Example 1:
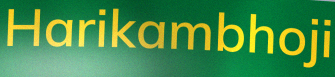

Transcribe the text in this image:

Harikambhoji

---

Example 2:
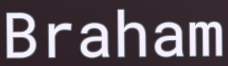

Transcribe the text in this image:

Braham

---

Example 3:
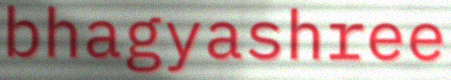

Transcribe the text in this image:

bhagyashree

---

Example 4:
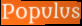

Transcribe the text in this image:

Populus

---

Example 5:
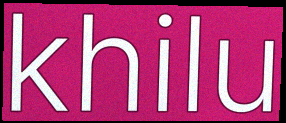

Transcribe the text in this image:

khilu